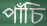
পাঁচি